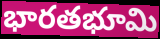
భారతభూమి